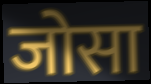
जोसा